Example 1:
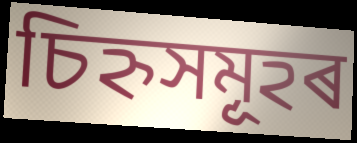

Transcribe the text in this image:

চিহ্নসমূহৰ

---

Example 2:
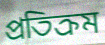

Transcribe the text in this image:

প্ৰতিক্ৰম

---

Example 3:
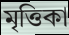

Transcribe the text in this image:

মৃত্তিকা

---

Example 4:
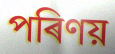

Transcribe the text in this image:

পৰিণয়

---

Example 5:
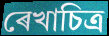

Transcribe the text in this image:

ৰেখাচিত্ৰ